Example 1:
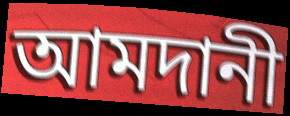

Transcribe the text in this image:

আমদানী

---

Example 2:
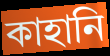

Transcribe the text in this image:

কাহানি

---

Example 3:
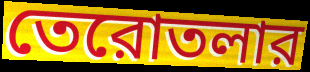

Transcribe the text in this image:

তেরোতলার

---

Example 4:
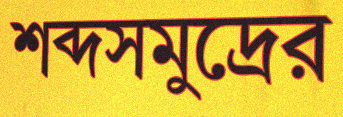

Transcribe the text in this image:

শব্দসমুদ্রের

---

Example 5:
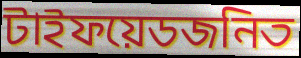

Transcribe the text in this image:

টাইফয়েডজনিত